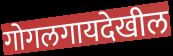
गोगलगायदेखील